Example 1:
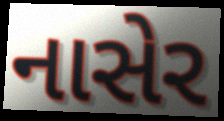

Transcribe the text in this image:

નાસેર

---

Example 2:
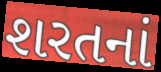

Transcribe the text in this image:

શરતનાં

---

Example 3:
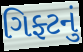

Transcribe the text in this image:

ગિફ્ટનું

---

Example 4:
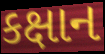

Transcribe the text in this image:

કક્ષાન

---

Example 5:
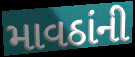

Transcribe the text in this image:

માવઠાંની